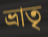
ভ্ৰাতৃ